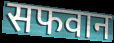
सफवान